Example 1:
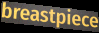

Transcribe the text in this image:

breastpiece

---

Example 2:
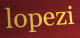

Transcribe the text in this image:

lopezi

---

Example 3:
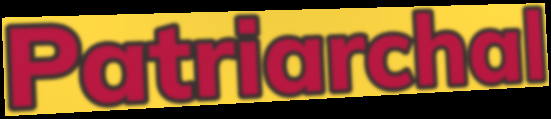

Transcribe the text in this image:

Patriarchal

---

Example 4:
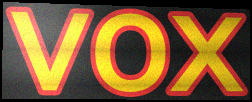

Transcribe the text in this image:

vox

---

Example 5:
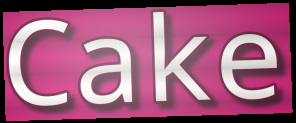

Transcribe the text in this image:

Cake